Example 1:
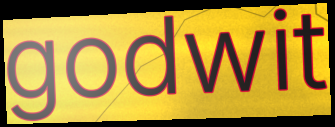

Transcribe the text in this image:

godwit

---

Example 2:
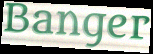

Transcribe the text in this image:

Banger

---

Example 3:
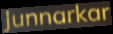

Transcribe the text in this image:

Junnarkar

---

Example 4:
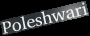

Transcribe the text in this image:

Poleshwari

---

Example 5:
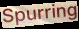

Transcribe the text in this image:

Spurring